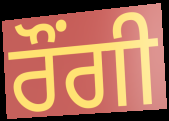
ਰੌਂਗੀ